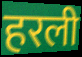
हरली